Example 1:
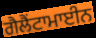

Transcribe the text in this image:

ਗੈਲੈਂਟਾਮਾਈਨ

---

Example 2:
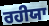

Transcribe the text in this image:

ਰਹੀਯਾ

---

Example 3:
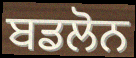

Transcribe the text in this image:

ਬਡਲੋਨ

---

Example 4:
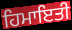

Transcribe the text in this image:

ਹਿਮਾਇਤੀ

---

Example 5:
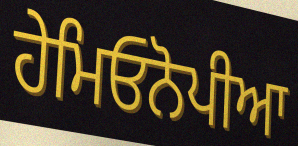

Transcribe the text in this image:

ਹੇਮਿਓਨੋਪੀਆ